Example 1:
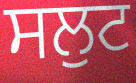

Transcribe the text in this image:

ਸਲੁਟ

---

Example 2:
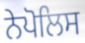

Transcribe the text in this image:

ਨੇਪੋਲਿਸ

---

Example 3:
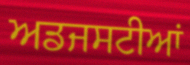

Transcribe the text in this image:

ਅਡਜਸਟੀਆਂ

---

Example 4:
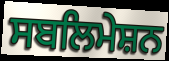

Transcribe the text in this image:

ਸਬਲਿਮੇਸ਼ਨ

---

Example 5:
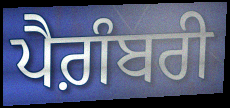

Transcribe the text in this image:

ਪੈਗ਼ੰਬਰੀ